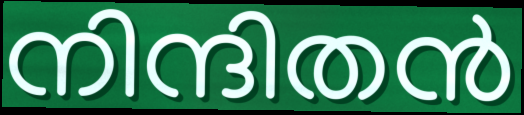
നിന്ദിതൻ